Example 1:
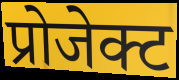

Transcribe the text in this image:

प्रोजेक्ट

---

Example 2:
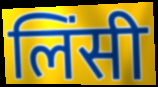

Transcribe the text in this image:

लिंसी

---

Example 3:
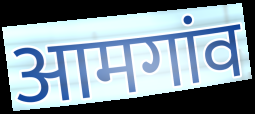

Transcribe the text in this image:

आमगांव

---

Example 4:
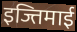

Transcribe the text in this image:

इज्तिमाई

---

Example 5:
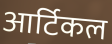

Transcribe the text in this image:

आर्टिकल